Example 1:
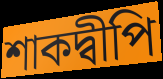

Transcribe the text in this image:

শাকদ্বীপি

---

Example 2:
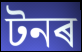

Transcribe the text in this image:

টনৰ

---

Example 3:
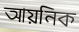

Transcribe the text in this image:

আয়নিক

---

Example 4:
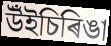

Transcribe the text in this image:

উঁইচিৰিঙা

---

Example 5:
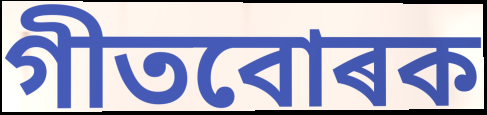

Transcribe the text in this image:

গীতবোৰক